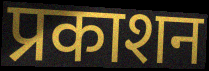
प्रकाशन